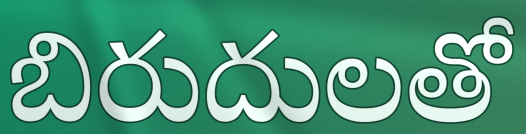
బిరుదులతో